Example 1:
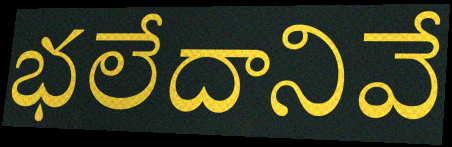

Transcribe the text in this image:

భలేదానివే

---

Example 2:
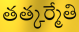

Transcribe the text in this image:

తత్కర్మేతి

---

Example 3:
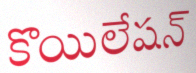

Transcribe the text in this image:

కొయిలేషన్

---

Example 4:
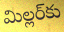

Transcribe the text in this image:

మిల్లర్‌కు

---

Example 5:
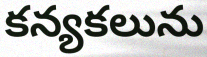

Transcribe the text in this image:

కన్యకలును